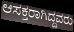
ಆಸಕ್ತರಾಗಿದ್ದವರು